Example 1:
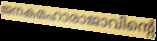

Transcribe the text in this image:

ജനകമഹാരാജാവിന്റെ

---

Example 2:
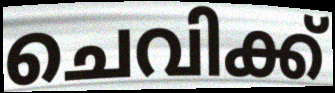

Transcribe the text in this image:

ചെവിക്ക്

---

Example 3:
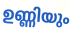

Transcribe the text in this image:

ഉണ്ണിയും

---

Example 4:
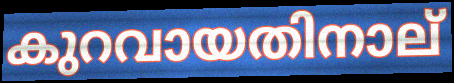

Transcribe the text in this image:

കുറവായതിനാല്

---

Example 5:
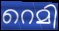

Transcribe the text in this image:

റെമി